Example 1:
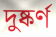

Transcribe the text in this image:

দুষ্কর্ণ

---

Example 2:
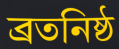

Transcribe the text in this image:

ব্রতনিষ্ঠ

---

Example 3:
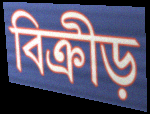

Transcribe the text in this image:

বিক্রীড়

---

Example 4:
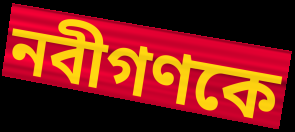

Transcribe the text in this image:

নবীগণকে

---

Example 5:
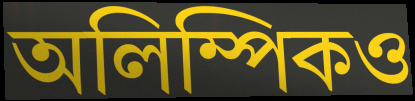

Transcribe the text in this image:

অলিম্পিকও